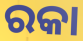
ରକା